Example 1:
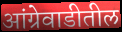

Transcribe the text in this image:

आंग्रेवाडीतील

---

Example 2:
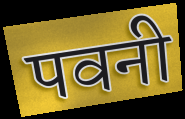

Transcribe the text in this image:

पवनी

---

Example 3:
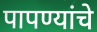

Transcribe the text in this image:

पापण्यांचे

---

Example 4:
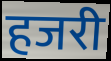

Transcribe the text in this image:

हजरी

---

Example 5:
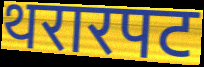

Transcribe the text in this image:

थरारपट